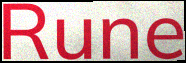
Rune